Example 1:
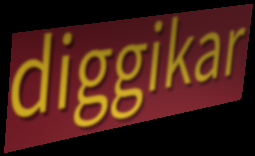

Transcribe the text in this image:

diggikar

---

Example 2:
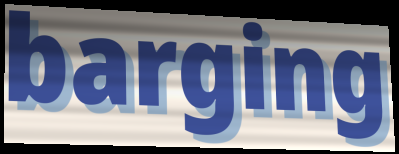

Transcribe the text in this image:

barging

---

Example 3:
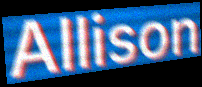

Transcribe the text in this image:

Allison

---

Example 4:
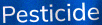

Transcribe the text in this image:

Pesticide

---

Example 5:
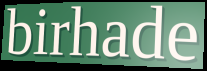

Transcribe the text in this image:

birhade